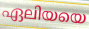
ഏലിയയെ